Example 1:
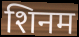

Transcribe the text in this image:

शिनम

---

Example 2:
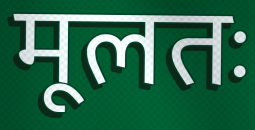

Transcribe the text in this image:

मूलतः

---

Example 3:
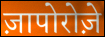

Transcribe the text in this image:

ज़ापोरोज़े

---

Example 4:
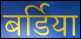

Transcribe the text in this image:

बर्डिया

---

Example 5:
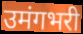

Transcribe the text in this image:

उमंगभरी